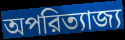
অপরিত্যাজ্য